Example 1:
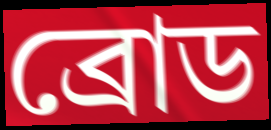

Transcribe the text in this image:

ব্রোড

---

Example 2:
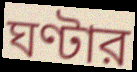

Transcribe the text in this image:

ঘণ্টার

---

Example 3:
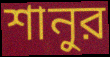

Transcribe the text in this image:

শানুর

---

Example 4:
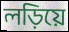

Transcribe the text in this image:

লড়িয়ে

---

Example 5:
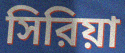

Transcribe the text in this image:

সিরিয়া